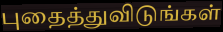
புதைத்துவிடுங்கள்